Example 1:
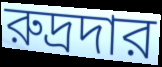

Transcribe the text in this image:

রুদ্রদার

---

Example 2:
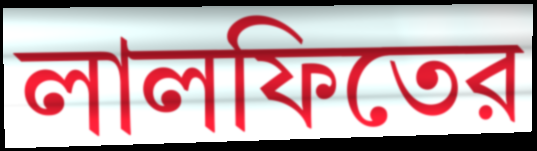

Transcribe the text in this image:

লালফিতের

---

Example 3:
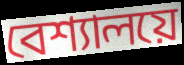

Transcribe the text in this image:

বেশ্যালয়ে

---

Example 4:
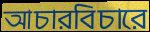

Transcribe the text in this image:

আচারবিচারে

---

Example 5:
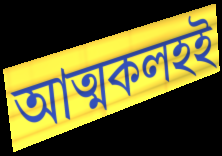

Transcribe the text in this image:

আত্মকলহই